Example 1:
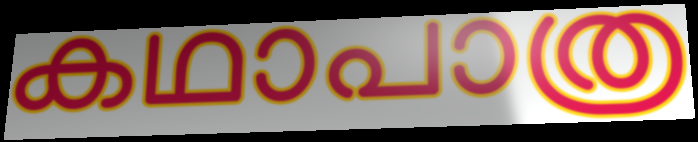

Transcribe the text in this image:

കഥാപാത്ര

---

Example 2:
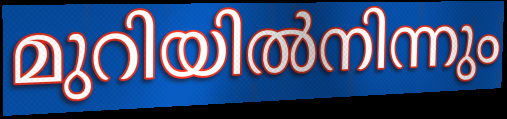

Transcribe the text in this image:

മുറിയിൽനിന്നും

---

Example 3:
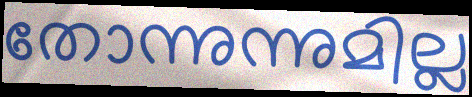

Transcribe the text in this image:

തോന്നുന്നുമില്ല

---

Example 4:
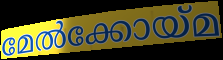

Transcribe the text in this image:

മേൽക്കോയ്മ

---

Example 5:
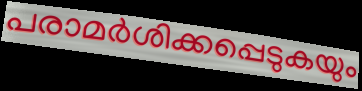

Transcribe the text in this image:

പരാമർശിക്കപ്പെടുകയും